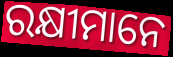
ରକ୍ଷୀମାନେ